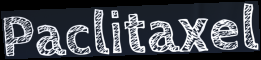
Paclitaxel